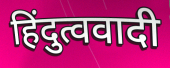
हिंदुत्ववादी